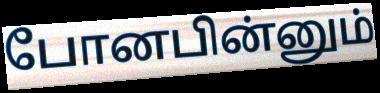
போனபின்னும்